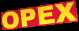
OPEX